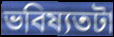
ভবিষ্যতটা